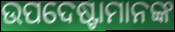
ଉପଦେଷ୍ଟାମାନଙ୍କ